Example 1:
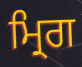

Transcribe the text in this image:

ਮ੍ਰਿਗ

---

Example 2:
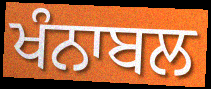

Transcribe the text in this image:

ਖੰਨਾਬਲ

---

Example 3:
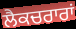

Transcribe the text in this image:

ਲੈਕਚਰਾਰਾਂ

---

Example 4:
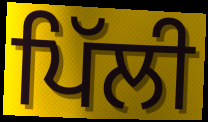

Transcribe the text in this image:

ਪਿੱਲੀ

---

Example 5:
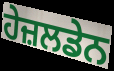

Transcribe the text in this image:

ਹੇਜ਼ਲਡੇਨ